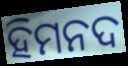
ହିମନଦ